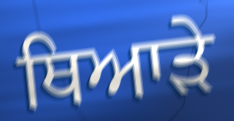
ਥਿਆੜੇ